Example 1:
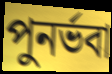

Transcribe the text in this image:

পুনর্ভবা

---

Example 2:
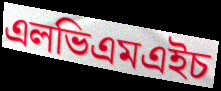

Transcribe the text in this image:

এলভিএমএইচ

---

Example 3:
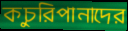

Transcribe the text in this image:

কচুরিপানাদের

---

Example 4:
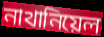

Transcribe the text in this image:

নাথানিয়েল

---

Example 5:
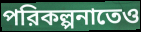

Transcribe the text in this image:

পরিকল্পনাতেও